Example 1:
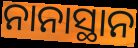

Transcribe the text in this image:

ନାନାସ୍ଥାନ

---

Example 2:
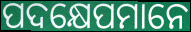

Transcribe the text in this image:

ପଦକ୍ଷେପମାନେ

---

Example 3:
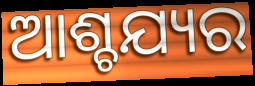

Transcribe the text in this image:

ଆଶ୍ଚଯ୍ୟର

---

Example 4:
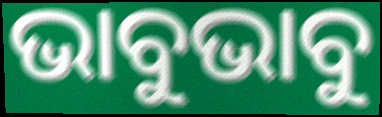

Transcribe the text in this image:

ଭାବୁଭାବୁ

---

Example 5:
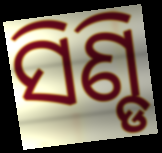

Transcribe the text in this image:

ସିଣ୍ଡି